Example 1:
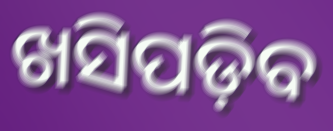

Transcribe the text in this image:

ଖସିପଡ଼ିବ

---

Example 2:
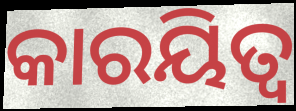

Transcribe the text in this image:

କାରୟିତ୍ୱ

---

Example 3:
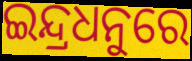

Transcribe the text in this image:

ଇନ୍ଦ୍ରଧନୁରେ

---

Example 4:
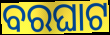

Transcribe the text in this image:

ବରଘାଟ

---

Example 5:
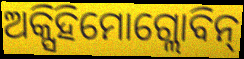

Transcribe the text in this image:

ଅକ୍ସିହିମୋଗ୍ଲୋବିନ୍